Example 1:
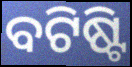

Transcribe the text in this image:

ବଟିଷ୍ଟି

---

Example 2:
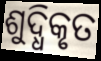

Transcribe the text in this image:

ଶୁଦ୍ଧିକୃତ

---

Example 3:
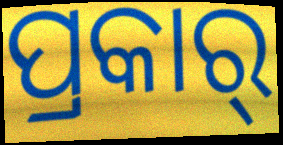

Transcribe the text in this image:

ପ୍ରକାର୍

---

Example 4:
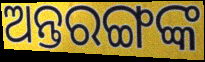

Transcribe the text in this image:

ଅନ୍ତରଙ୍ଗଙ୍କ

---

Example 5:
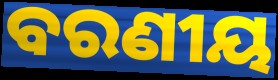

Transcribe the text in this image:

ବରଣୀୟ